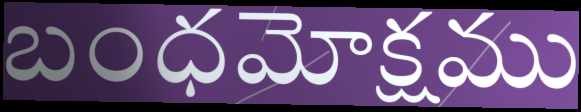
బంధమోక్షము